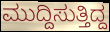
ಮುದ್ದಿಸುತ್ತಿದ್ದ